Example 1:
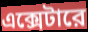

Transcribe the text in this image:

এক্সেটারে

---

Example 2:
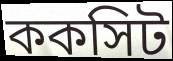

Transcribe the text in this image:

ককসিট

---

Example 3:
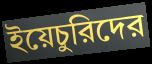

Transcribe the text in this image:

ইয়েচুরিদের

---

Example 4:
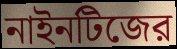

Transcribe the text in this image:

নাইনটিজের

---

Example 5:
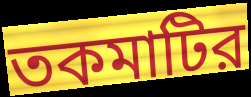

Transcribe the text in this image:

তকমাটির